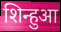
शिन्हुआ